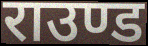
राउण्ड